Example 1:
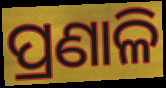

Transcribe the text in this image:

ପ୍ରଣାଳି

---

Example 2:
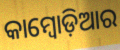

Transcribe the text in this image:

କାମ୍ବୋଡ଼ିଆର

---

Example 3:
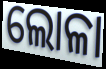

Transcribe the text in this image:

ଲୋଳା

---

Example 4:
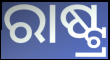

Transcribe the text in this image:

ରାଷ୍ଟ୍ର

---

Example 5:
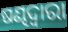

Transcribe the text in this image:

ଷଣ୍ଢଦ୍ୱାରା